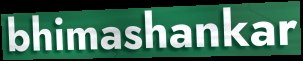
bhimashankar